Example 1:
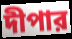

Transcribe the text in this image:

দীপার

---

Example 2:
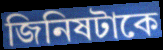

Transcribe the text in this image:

জিনিষটাকে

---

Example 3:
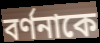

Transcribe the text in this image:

বর্ণনাকে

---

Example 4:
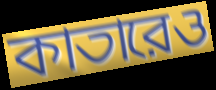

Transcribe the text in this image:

কাতারেও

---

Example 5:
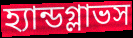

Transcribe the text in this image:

হ্যান্ডগ্লাভস